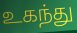
உகந்து